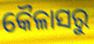
କୈଳାସରୁ